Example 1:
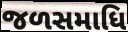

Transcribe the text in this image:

જળસમાધિ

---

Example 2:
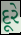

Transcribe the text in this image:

દૂરે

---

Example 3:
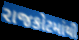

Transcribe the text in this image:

રાજકોટમાંથી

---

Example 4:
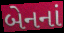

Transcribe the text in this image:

બેનનાં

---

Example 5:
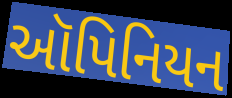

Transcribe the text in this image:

ઑપિનિયન